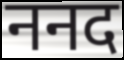
ननद